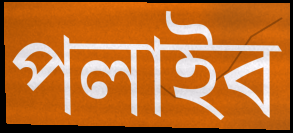
পলাইব